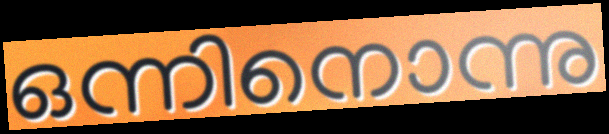
ഒന്നിനൊന്നു